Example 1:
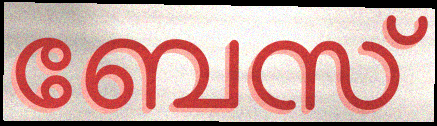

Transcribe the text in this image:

ബേസ്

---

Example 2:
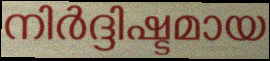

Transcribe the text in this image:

നിർദ്ദിഷ്ടമായ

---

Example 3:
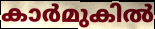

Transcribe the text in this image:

കാർമുകിൽ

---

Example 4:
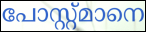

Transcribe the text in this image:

പോസ്റ്റ്മാനെ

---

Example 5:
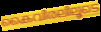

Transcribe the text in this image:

കൈവിരലിലൂടെ